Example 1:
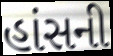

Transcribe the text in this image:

હાંસની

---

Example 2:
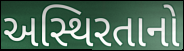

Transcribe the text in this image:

અસ્થિરતાનો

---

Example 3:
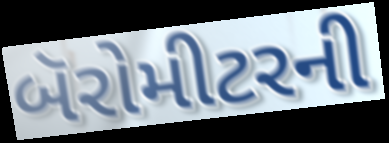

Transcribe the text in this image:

બૅરોમીટરની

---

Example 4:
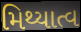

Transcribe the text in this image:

મિથ્યાત્વ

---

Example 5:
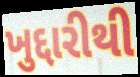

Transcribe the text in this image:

ખુદ્દારીથી